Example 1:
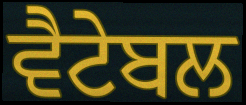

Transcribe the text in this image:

ਵੈਟੇਬਲ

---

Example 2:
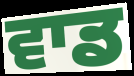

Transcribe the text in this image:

ਵਾਡ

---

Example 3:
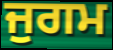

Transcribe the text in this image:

ਜੁਗਮ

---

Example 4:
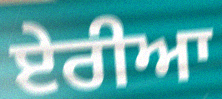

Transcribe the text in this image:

ਏਰੀਆ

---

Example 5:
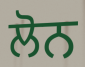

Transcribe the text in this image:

ਲੋਨ